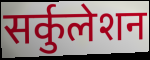
सर्कुलेशन